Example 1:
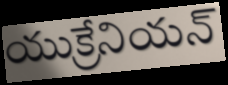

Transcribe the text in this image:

యుక్రేనియన్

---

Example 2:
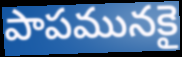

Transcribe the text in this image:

పాపమునకై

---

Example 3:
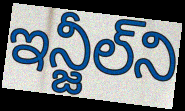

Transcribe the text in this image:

ఇన్జీల్‌ని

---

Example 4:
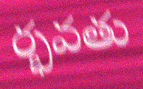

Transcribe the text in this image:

ర్భవతు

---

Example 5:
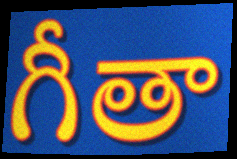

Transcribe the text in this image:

గీతా